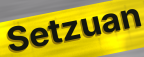
Setzuan